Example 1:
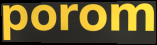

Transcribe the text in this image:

porom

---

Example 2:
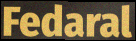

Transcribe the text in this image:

Fedaral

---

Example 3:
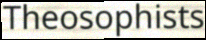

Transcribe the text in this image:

Theosophists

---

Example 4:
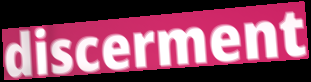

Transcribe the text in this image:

discerment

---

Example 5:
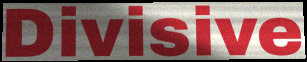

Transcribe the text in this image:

Divisive